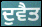
ਦੁਵੈਤ